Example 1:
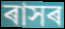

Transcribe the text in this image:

ৰাসৰ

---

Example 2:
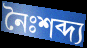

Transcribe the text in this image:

নৈঃশব্দ্য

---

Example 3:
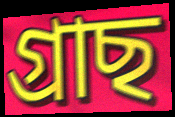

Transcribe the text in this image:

গ্ৰাছ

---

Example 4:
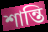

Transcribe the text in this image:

শান্তি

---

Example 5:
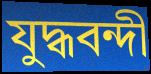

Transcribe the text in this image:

যুদ্ধবন্দী